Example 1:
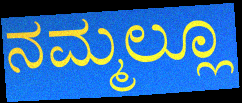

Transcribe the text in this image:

ನಮ್ಮಲ್ಲೂ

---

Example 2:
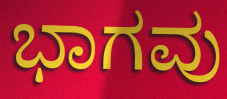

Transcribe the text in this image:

ಭಾಗವು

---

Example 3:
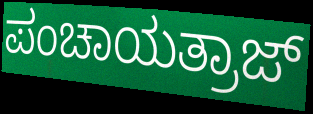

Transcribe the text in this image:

ಪಂಚಾಯತ್ರಾಜ್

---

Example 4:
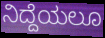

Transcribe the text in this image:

ನಿದ್ದೆಯಲೂ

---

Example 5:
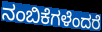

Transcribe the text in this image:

ನಂಬಿಕೆಗಳೆಂದರೆ